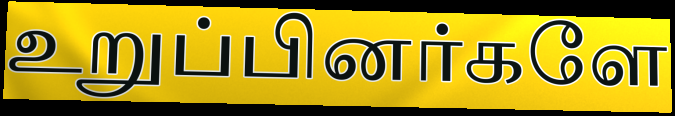
உறுப்பினர்களே